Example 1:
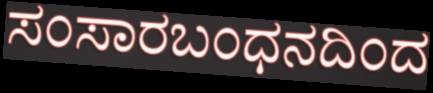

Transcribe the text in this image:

ಸಂಸಾರಬಂಧನದಿಂದ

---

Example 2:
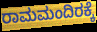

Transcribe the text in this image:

ರಾಮಮಂದಿರಕ್ಕೆ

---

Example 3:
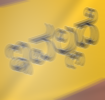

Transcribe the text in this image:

ಇವಲ್ಲದೆ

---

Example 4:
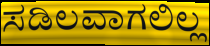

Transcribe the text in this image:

ಸಡಿಲವಾಗಲಿಲ್ಲ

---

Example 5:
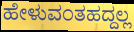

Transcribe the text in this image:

ಹೇಳುವಂತಹದ್ದಲ್ಲ